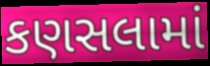
કણસલામાં